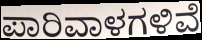
ಪಾರಿವಾಳಗಳಿವೆ